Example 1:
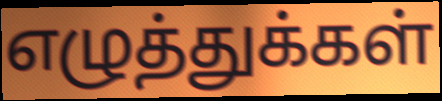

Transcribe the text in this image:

எழுத்துக்கள்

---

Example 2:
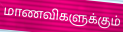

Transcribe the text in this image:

மாணவிகளுக்கும்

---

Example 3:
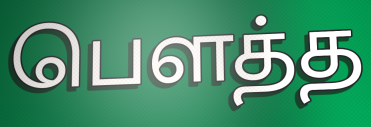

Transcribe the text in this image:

பௌத்த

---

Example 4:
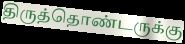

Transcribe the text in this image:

திருத்தொண்டருக்கு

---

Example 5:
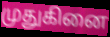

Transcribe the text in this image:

முதுகினை